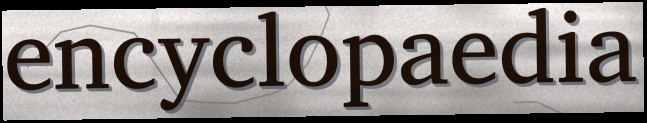
encyclopaedia